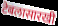
टेबलासारखी